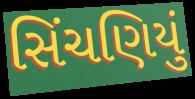
સિંચણિયું